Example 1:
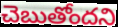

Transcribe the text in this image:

చెబుతోందని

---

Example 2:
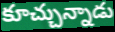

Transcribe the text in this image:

కూచ్చున్నాడు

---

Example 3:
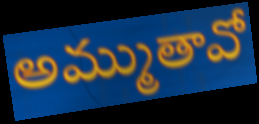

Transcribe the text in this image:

అమ్ముతావో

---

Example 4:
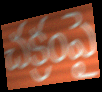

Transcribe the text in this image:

చక్రంపై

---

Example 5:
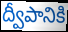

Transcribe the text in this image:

ద్వీపానికి